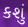
કશું